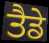
ਤੈਡੇ